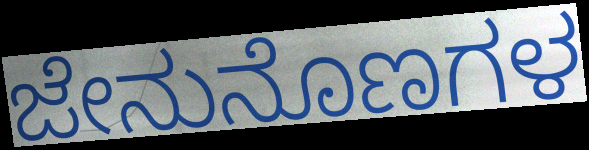
ಜೇನುನೊಣಗಳ